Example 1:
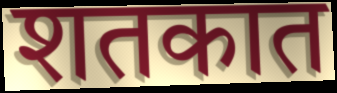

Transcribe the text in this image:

शतकात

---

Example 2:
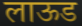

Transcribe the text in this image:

लाऊड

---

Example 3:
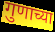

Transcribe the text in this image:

गुणाच्या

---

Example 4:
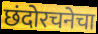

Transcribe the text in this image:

छंदोरचनेचा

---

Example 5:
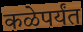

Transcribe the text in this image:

कळेपर्यंत